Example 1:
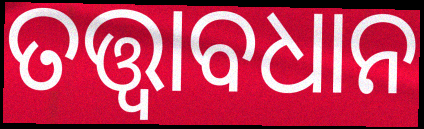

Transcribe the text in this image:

ତତ୍ତ୍ବାବଧାନ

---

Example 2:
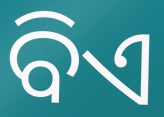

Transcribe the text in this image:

ବିଏ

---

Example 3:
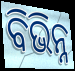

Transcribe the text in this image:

ବିଭିନ୍ନ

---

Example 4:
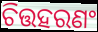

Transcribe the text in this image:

ଚିତ୍ତହରଣଂ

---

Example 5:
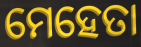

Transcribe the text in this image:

ମେହେତା